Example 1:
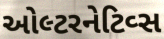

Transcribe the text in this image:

ઓલ્ટરનેટિવ્સ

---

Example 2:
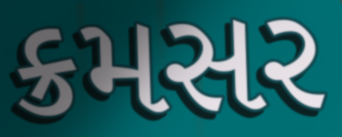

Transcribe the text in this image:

ક્રમસર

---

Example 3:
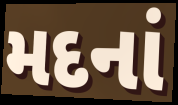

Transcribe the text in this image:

મદનાં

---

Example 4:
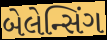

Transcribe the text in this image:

બેલેન્સિંગ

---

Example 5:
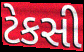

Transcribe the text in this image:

ટેકસી